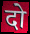
दो